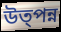
উত্পন্ন